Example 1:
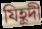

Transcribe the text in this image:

যিহূদী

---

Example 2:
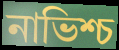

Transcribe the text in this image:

নাভিশ্চ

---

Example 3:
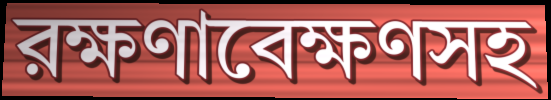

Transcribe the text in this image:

রক্ষণাবেক্ষণসহ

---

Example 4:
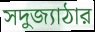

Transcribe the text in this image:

সদুজ্যাঠার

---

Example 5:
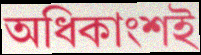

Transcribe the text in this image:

অধিকাংশই